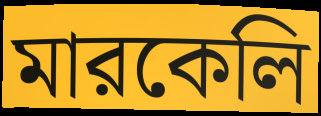
মারকেলি